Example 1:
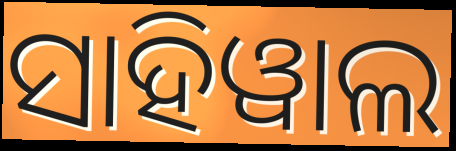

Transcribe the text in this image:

ସାହିୱାଲ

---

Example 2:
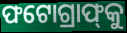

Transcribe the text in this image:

ଫଟୋଗ୍ରାଫ୍‌କୁ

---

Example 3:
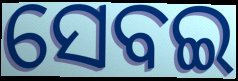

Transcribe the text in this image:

ସେବଇ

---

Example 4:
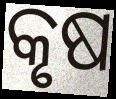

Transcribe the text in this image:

କୃଷ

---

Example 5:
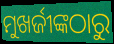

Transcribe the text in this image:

ମୁଖର୍ଜୀଙ୍କଠାରୁ